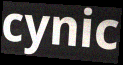
cynic